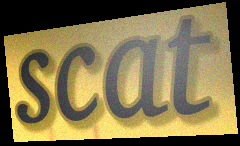
scat